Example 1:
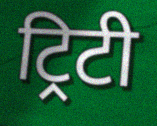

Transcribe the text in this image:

ट्रिटी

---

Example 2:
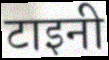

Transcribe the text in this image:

टाइनी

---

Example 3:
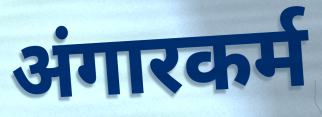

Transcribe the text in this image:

अंगारकर्म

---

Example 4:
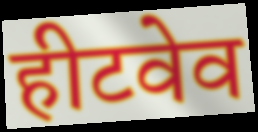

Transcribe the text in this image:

हीटवेव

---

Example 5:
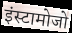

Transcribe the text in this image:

इंस्टामोजो